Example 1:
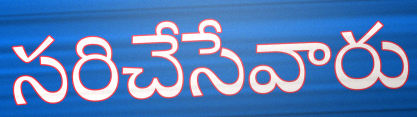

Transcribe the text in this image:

సరిచేసేవారు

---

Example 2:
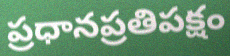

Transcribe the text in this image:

ప్రధానప్రతిపక్షం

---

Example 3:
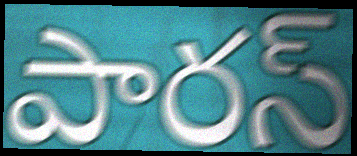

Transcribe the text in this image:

పారస్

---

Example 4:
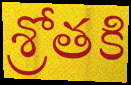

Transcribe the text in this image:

శ్రోతకి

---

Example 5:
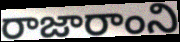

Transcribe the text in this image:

రాజారాంని